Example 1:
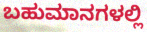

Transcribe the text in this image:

ಬಹುಮಾನಗಳಲ್ಲಿ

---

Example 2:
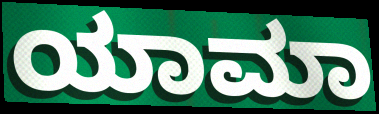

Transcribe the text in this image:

ಯಾಮಾ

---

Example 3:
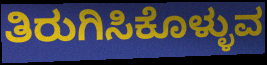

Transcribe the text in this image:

ತಿರುಗಿಸಿಕೊಳ್ಳುವ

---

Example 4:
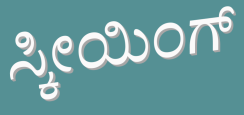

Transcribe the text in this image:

ಸ್ಕೀಯಿಂಗ್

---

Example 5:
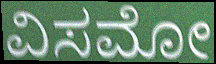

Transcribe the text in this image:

ವಿಸಮೋ